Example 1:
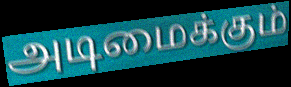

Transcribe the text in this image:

அடிமைக்கும்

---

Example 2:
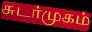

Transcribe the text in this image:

சுடர்முகம்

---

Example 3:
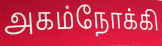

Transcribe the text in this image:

அகம்நோக்கி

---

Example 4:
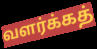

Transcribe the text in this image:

வளர்க்கத்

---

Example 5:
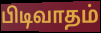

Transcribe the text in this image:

பிடிவாதம்